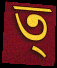
ত্